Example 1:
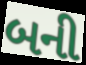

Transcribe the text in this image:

બની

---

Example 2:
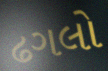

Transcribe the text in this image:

ઢગલો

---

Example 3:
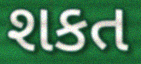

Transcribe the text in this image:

શકત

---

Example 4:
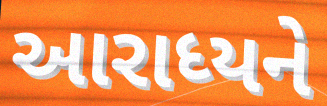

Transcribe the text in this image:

આરાધ્યને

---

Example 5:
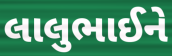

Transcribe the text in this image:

લાલુભાઈને